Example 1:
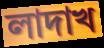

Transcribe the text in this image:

লাদাখ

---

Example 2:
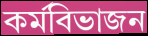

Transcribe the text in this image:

কর্মবিভাজন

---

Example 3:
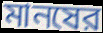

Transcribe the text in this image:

মানষের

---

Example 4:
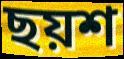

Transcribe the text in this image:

ছয়শ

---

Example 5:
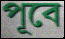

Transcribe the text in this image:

পূবে